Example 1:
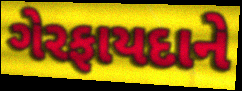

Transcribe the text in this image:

ગેરફાયદાને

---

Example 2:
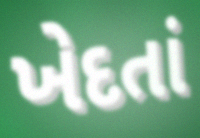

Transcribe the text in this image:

ખેદતાં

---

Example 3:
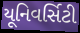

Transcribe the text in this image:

યૂનિવર્સિટી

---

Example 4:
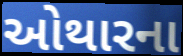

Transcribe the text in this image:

ઓથારના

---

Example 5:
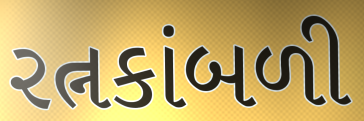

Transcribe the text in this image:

રત્નકાંબળી